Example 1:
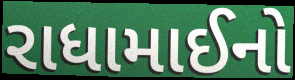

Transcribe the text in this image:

રાધામાઈનો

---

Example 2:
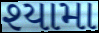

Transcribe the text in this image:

શ્યામા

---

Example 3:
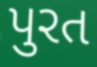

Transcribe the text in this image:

પુરત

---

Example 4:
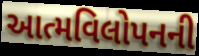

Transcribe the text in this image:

આત્મવિલોપનની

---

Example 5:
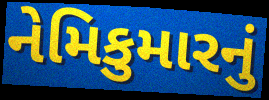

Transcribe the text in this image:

નેમિકુમારનું